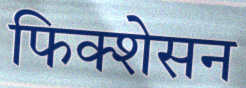
फिक्शेसन